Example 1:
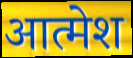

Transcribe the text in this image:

आत्मेश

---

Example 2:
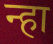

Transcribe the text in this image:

न्हा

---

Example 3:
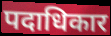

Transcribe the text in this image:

पदाधिकार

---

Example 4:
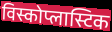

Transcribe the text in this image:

विस्कोप्लास्टिक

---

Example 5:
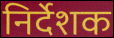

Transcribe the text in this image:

निर्देशक